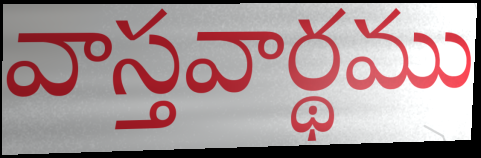
వాస్తవార్థము